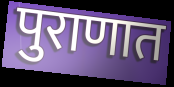
पुराणात